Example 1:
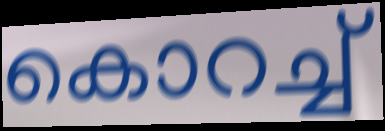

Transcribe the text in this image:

കൊറച്ച്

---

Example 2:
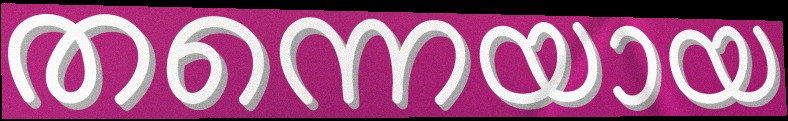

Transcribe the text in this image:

തന്നെയായ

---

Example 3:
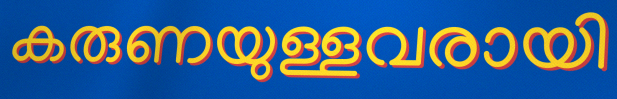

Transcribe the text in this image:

കരുണയുള്ളവരായി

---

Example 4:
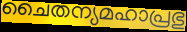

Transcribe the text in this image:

ചൈതന്യമഹാപ്രഭു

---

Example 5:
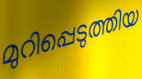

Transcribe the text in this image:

മുറിപ്പെടുത്തിയ